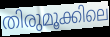
തിരുമൂക്കിലെ